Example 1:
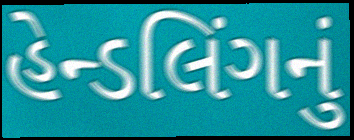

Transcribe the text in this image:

હેન્ડલિંગનું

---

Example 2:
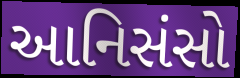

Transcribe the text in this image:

આનિસંસો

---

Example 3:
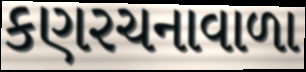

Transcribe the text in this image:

કણરચનાવાળા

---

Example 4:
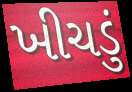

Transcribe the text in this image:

ખીચડું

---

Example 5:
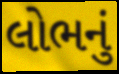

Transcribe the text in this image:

લોભનું